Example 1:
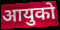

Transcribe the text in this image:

आयुको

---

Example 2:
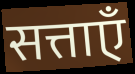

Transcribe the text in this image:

सत्ताएँ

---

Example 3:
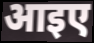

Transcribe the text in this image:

आइए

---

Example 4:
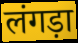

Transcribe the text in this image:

लंगड़ा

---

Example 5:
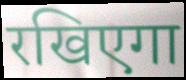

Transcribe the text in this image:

रखिएगा